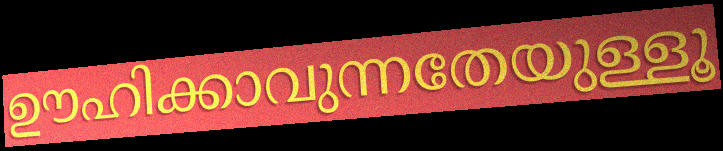
ഊഹിക്കാവുന്നതേയുള്ളൂ